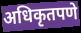
अधिकृतपणे